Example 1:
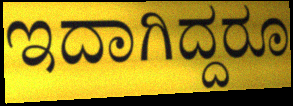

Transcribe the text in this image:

ಇದಾಗಿದ್ದರೂ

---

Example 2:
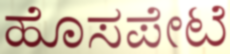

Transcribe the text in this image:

ಹೊಸಪೇಟೆ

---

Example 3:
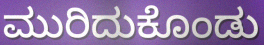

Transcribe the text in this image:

ಮುರಿದುಕೊಂಡು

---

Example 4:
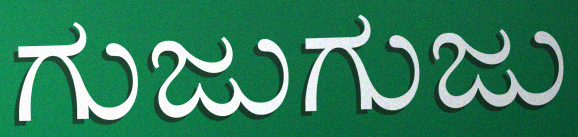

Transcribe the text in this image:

ಗುಜುಗುಜು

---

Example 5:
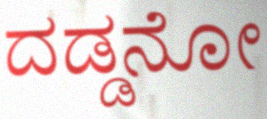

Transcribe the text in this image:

ದಡ್ಡನೋ